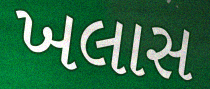
ખલાસ